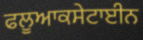
ਫਲੂਆਕਸੇਟਾਈਨ